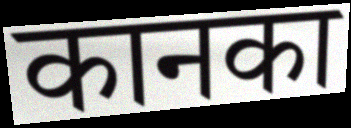
कानका